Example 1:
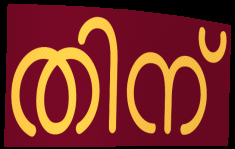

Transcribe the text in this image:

തിന്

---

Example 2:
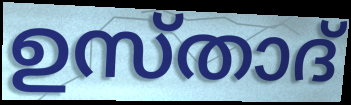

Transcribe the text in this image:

ഉസ്താദ്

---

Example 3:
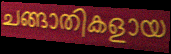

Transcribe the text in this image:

ചങ്ങാതികളായ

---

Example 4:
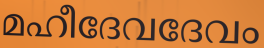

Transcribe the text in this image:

മഹീദേവദേവം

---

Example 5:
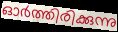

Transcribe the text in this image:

ഓർത്തിരിക്കുന്നു